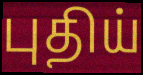
புதிய்